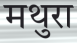
मथुरा